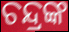
ଚନ୍ଦ୍ରଙ୍କ